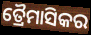
ତ୍ରୈମାସିକର